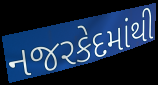
નજરકેદમાંથી